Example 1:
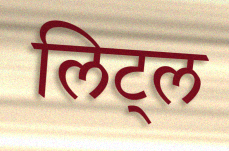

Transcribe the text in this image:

लिट्ल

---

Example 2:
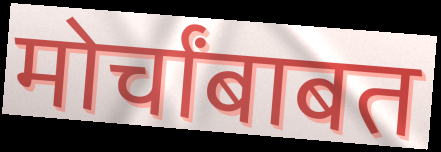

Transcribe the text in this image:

मोर्चांबाबत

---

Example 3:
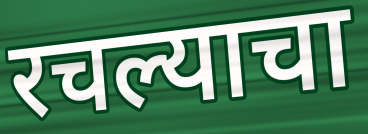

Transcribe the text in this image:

रचल्याचा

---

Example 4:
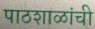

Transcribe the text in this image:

पाठशाळांची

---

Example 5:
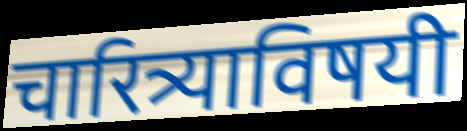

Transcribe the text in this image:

चारित्र्याविषयी